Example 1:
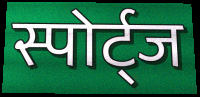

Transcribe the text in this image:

स्पोर्ट्ज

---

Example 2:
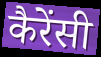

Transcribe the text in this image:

कैरेंसी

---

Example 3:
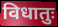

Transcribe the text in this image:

विधातुः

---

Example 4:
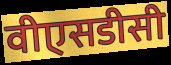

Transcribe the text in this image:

वीएसडीसी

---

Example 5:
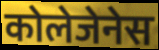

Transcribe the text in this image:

कोलेजेनेस